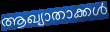
ആഖ്യാതാക്കൾ